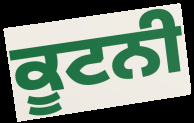
ਕੂਟਨੀ